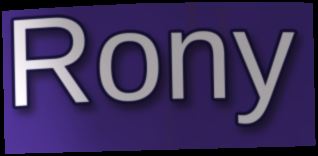
Rony